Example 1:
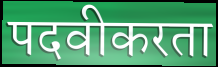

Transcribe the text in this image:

पदवीकरता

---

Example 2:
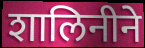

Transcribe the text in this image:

शालिनीने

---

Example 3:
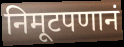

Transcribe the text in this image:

निमूटपणानं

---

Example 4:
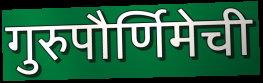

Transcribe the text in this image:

गुरुपौर्णिमेची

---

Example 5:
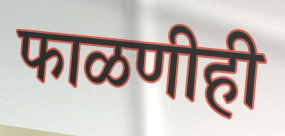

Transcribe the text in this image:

फाळणीही